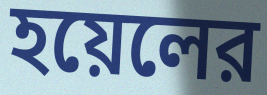
হয়েলের